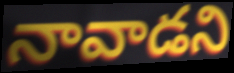
నావాడని